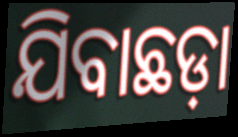
ଯିବାଛଡ଼ା